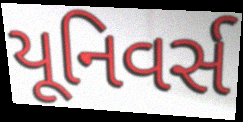
યૂનિવર્સ